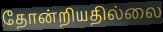
தோன்றியதில்லை